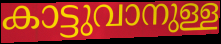
കാട്ടുവാനുള്ള